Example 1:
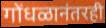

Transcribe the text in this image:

गोंधळानंतरही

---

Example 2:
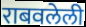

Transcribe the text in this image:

राबवलेली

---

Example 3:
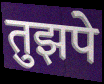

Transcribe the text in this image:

तुझपे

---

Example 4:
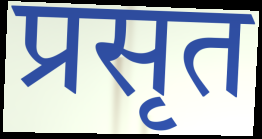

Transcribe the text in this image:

प्रसृत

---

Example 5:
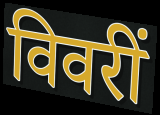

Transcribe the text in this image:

विवरीं